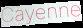
Cayenne